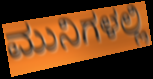
ಮುನಿಗಳಲ್ಲಿ